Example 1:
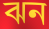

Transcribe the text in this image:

ঝন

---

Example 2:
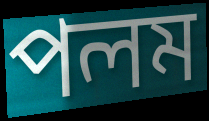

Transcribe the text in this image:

পলম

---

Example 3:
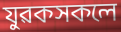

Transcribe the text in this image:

যুৱকসকলে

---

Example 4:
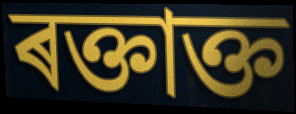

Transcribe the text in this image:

ৰক্তাক্ত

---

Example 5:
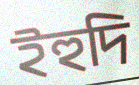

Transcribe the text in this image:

ইহুদি